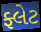
ફ્લેટ